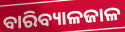
ବାରିବ୍ୟାଳଜାଳ